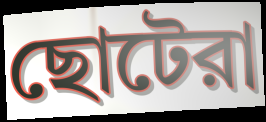
ছোটেরা